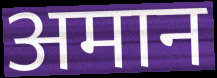
अमान